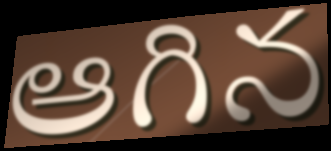
ఆగిన